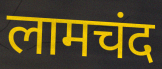
लामचंद